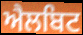
ਐਲਬਿਟ